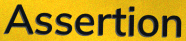
Assertion